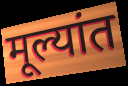
मूल्यांत